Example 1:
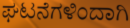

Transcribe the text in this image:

ಘಟನೆಗಳಿಂದಾಗಿ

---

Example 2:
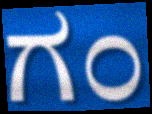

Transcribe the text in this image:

ಗಂ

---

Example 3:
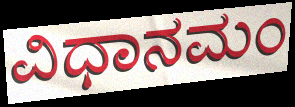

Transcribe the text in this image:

ವಿಧಾನಮಂ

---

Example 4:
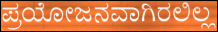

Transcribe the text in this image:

ಪ್ರಯೋಜನವಾಗಿರಲಿಲ್ಲ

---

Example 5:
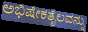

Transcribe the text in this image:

ಅಭಿಷೇಕತೈಲವನ್ನು